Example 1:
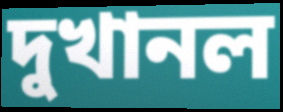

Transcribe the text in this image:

দুখানল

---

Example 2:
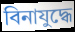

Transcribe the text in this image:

বিনাযুদ্ধে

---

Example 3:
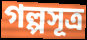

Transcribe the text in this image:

গল্পসূত্র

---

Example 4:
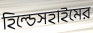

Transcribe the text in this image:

হিল্ডেসহাইমের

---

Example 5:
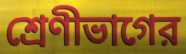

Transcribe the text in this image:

শ্রেণীভাগের